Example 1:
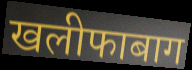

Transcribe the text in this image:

खलीफाबाग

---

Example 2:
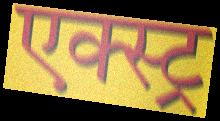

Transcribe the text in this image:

एक्स्ट्र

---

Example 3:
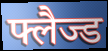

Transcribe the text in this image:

फ्लैज्ड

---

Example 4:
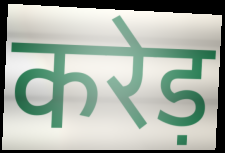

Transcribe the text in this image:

करेड़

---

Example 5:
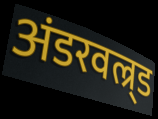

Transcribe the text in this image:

अंडरवल्र्ड